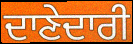
ਦਾਣੇਦਾਰੀ